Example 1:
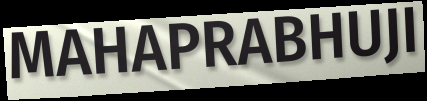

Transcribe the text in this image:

MAHAPRABHUJI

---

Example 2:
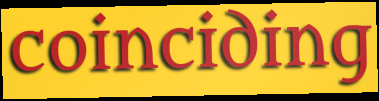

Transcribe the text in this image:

coinciding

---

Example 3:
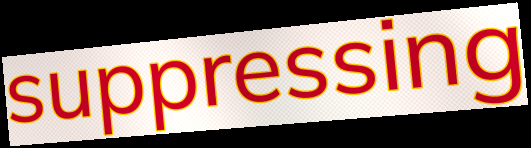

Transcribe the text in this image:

suppressing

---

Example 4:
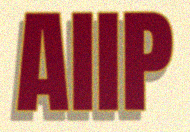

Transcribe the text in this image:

AIIP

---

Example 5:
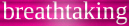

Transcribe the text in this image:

breathtaking